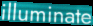
illuminate